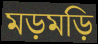
মড়মড়ি